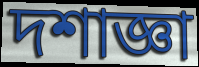
দশাজ্ঞা